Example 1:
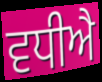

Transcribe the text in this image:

ਵਧੀਐ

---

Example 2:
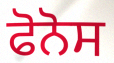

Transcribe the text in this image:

ਫੋਨੋਸ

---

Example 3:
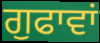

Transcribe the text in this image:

ਗੁਫਾਵਾਂ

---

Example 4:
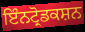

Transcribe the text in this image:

ਇੰਨਟ੍ਰੋਡਕਸ਼ਨ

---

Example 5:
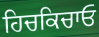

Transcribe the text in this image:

ਹਿਚਕਿਚਾਓ